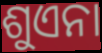
ଶୁଏନା